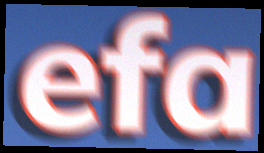
efa